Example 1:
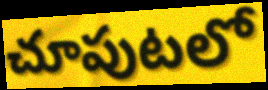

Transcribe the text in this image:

చూపుటలో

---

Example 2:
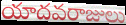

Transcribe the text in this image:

యాదవరాజులు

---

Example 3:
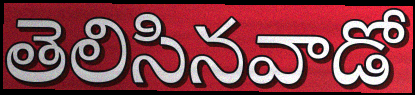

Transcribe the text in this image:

తెలిసినవాడో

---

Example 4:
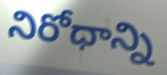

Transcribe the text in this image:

నిరోధాన్ని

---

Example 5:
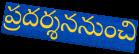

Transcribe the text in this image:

ప్రదర్శననుంచి